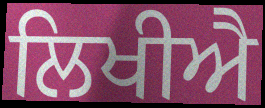
ਲਿਖੀਐ